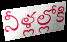
నీళ్లల్లోకి